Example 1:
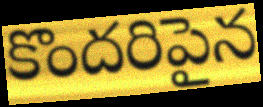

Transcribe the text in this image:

కొందరిపైన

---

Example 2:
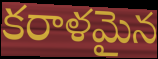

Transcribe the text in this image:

కరాళమైన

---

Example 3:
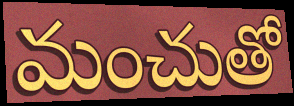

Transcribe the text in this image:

మంచుతో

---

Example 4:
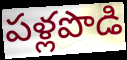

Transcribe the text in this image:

పళ్లపొడి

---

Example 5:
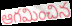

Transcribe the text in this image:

ఆగమించిన